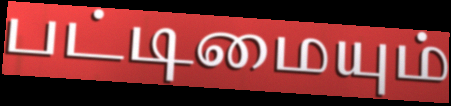
பட்டிமையும்